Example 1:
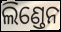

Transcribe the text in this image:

ଲିଣ୍ଡେନ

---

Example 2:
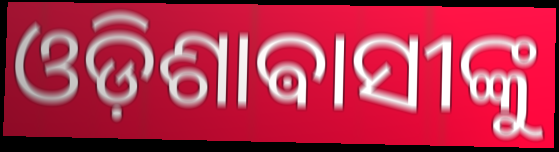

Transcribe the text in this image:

ଓଡ଼ିଶାଵାସୀଙ୍କୁ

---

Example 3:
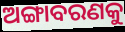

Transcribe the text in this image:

ଅଙ୍ଗାବରଣକୁ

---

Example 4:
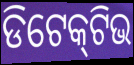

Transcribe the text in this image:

ଡିଟେକ୍‍ଟିଭ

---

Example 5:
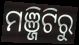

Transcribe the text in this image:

ମଞ୍ଜିଟିରୁ